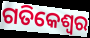
ଗତିକେଶ୍ବର